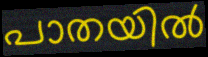
പാതയിൽ